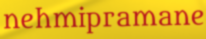
nehmipramane